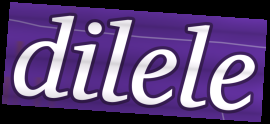
dilele